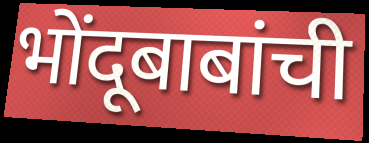
भोंदूबाबांची